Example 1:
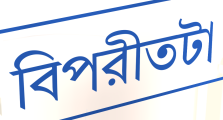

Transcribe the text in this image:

বিপরীতটা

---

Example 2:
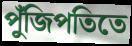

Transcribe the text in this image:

পুঁজিপতিতে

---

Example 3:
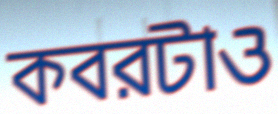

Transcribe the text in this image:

কবরটাও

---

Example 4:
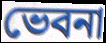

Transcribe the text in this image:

ভেবনা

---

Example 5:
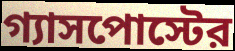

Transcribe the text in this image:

গ্যাসপোস্টের